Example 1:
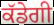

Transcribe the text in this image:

ਕੱਡੇਗੀ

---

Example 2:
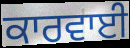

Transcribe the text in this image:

ਕਾਰਵਾਈ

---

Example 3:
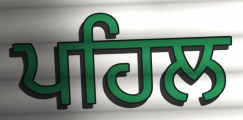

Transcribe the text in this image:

ਪਹਿਲ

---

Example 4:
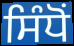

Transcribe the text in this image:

ਸਿੰਧੋਂ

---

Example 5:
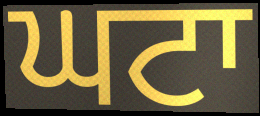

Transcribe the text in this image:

ਘਟਾ